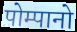
पोम्पानो